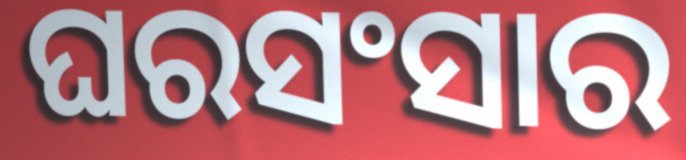
ଘରସଂସାର